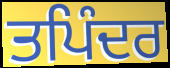
ਤਪਿੰਦਰ